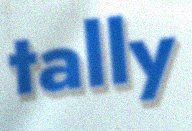
tally